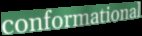
conformational